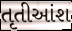
તૃતીઆંશ